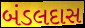
બંડલદાસ